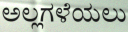
ಅಲ್ಲಗಳೆಯಲು